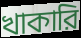
খাকারি